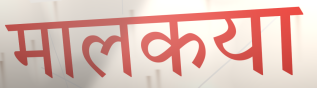
मालकया